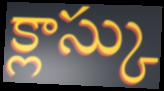
క్లాస్కు